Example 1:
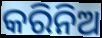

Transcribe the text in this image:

କରିନିଅ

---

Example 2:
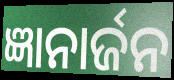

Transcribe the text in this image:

ଜ୍ଞାନାର୍ଜନ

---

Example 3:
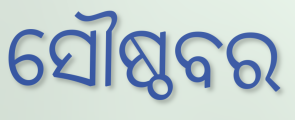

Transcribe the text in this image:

ସୌଷ୍ଠବର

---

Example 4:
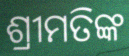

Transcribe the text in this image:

ଶ୍ରୀମତିଙ୍କ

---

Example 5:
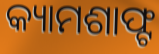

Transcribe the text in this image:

କ୍ୟାମଶାଫ୍ଟ